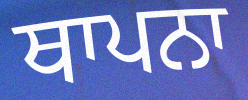
ਥਾਪਨਾ